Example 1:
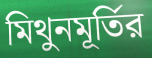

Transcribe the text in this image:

মিথুনমূর্তির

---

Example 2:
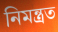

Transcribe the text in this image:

নিমন্ত্রত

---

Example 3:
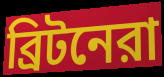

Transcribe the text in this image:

ব্রিটনেরা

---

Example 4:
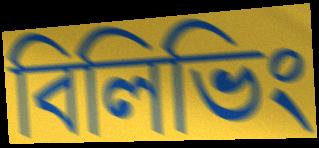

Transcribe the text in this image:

বিলিভিং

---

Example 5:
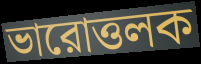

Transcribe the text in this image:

ভারোত্তলক